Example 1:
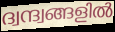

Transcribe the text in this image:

ദ്വന്ദ്വങ്ങളിൽ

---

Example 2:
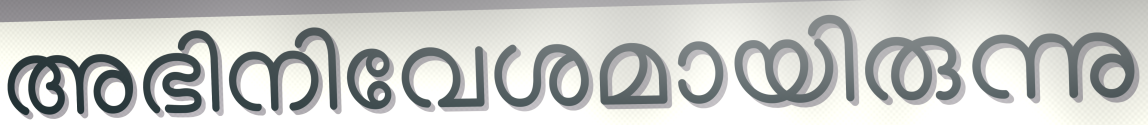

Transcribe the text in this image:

അഭിനിവേശമായിരുന്നു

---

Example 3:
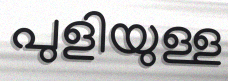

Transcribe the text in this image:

പുളിയുള്ള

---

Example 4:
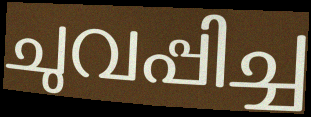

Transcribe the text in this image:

ചുവപ്പിച്ച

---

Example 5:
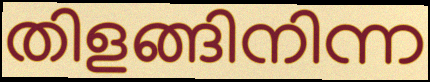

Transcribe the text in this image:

തിളങ്ങിനിന്ന